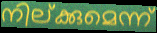
നില്ക്കുമെന്ന്